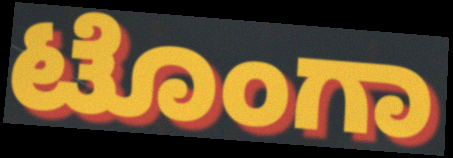
ಟೊಂಗಾ